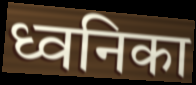
ध्वनिका